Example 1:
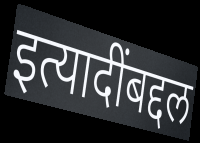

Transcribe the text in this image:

इत्यादींबद्दल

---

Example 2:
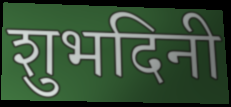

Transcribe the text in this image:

शुभदिनी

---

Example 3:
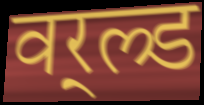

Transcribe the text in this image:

वर्ल्ड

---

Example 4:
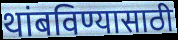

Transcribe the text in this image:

थांबविण्यासाठी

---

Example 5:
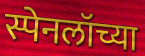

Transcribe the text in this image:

स्पेनलॉच्या